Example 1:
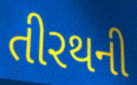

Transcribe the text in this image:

તીરથની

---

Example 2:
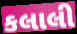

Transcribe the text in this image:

કલાલી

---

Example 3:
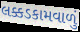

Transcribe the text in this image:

લક્કડકામવાળું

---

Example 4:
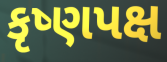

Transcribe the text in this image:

કૃષ્ણપક્ષ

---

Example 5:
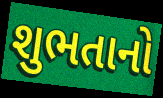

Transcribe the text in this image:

શુભતાનો